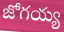
జోగయ్య